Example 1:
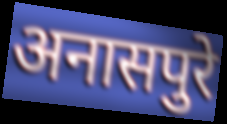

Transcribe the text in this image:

अनासपुरे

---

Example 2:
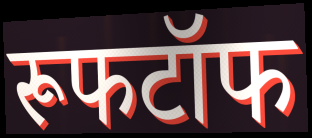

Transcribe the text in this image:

रूफटॉफ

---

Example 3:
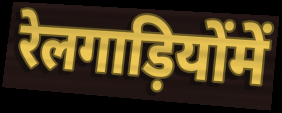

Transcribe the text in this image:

रेलगाड़ियोंमें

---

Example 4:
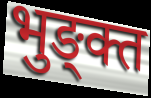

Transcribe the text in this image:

भुङ्क्त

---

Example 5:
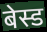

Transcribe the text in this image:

बेस्ड